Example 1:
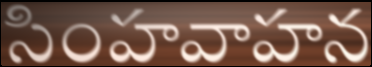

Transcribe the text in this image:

సింహవాహన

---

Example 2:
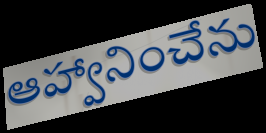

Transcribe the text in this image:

ఆహ్వానించేను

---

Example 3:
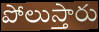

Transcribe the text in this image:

పోలుస్తారు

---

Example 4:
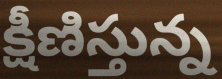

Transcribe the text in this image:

క్షీణిస్తున్న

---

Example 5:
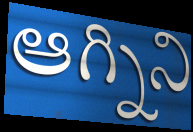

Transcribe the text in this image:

ఆగ్నిని